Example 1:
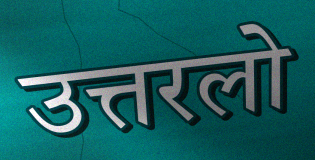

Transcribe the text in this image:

उत्तरलो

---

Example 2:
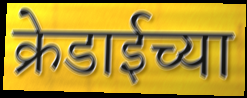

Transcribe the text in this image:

क्रेडाईच्या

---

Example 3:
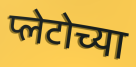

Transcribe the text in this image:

प्लेटोच्या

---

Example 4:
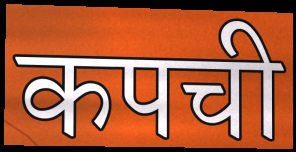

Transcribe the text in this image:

कपची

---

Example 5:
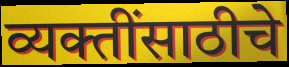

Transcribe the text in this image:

व्यक्तींसाठीचे